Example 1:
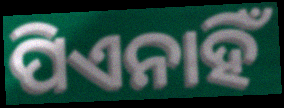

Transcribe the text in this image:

ପିଏନାହିଁ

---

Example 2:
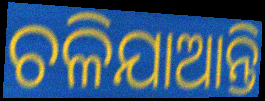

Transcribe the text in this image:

ଚଳିଯାଆନ୍ତି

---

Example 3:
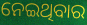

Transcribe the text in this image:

ନେଇଥିବାର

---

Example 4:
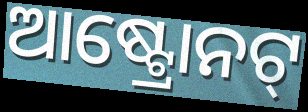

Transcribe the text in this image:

ଆଷ୍ଟ୍ରୋନଟ୍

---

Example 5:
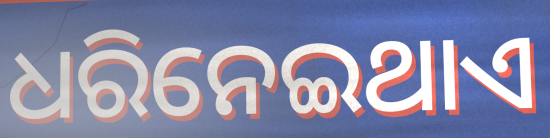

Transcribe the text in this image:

ଧରିନେଇଥାଏ